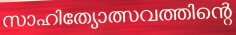
സാഹിത്യോത്സവത്തിന്റെ